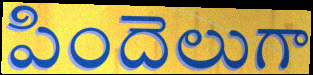
పిందెలుగా